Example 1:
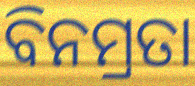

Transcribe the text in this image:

ବିନମ୍ରତା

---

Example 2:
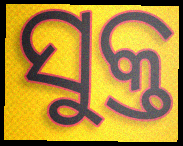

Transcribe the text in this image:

ସୁକ୍ତ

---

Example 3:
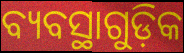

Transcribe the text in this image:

ବ୍ୟବସ୍ଥାଗୁଡ଼ିକ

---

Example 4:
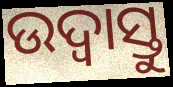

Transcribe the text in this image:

ଉଦ୍ବାସ୍ତୁ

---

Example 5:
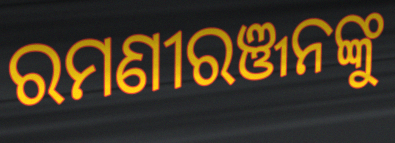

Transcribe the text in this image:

ରମଣୀରଞ୍ଜନଙ୍କୁ